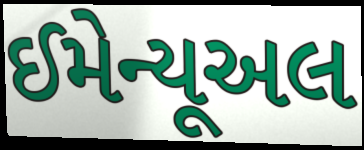
ઈમેન્યૂઅલ